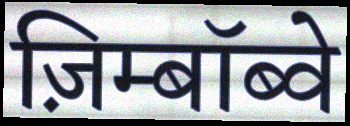
ज़िम्बॉब्वे